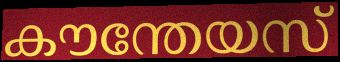
കൗന്തേയസ്